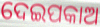
ଦେଇପକାଅ